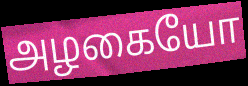
அழகையோ